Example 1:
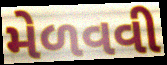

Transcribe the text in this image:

મેળવવી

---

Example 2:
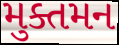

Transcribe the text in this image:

મુક્તમન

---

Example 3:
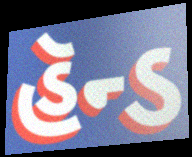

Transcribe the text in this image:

હૅન્ડ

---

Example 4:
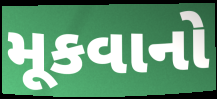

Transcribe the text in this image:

મૂકવાનો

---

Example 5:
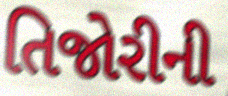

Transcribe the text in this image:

તિજોરીની